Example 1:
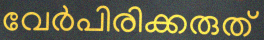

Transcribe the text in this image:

വേർപിരിക്കരുത്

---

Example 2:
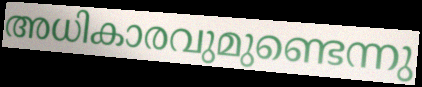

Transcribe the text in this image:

അധികാരവുമുണ്ടെന്നു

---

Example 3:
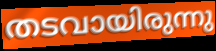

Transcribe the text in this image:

തടവായിരുന്നു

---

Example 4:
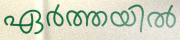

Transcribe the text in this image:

ഏർത്തയിൽ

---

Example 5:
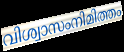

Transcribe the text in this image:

വിശ്വാസംനിമിത്തം